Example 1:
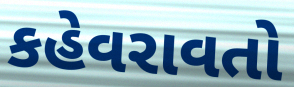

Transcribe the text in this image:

કહેવરાવતો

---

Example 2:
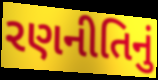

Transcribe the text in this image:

રણનીતિનું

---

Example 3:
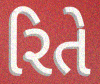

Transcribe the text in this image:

રિતે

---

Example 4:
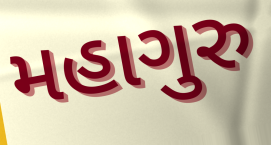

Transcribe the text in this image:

મહાગુરુ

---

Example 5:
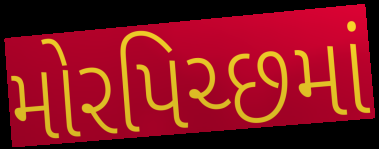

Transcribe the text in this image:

મોરપિચ્છમાં